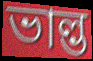
ভাল্ভ